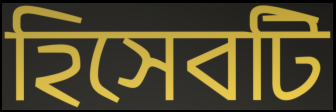
হিসেবটি